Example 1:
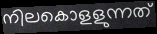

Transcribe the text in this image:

നിലകൊളളുന്നത്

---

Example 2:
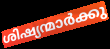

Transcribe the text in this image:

ശിഷ്യന്മാർക്കു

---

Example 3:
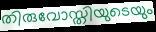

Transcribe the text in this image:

തിരുവോസ്തിയുടെയും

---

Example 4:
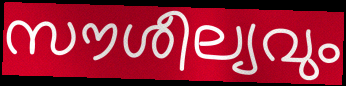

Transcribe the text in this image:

സൗശീല്യവും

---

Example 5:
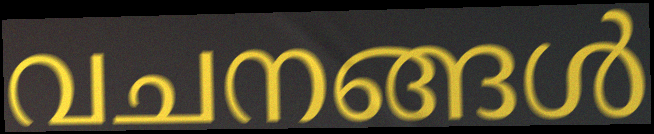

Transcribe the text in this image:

വചനങ്ങൾ